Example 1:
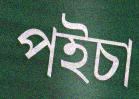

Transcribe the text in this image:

পইচা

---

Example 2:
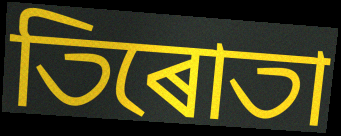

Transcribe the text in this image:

তিৰোতা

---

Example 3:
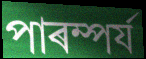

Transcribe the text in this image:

পাৰম্পৰ্য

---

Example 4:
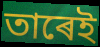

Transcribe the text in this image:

তাৰেই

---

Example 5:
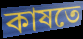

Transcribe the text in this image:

কাষতে